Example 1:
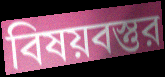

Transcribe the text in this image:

বিষয়বস্তুর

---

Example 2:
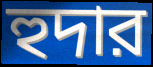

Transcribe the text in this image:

হুদার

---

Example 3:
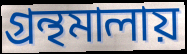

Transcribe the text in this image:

গ্রন্থমালায়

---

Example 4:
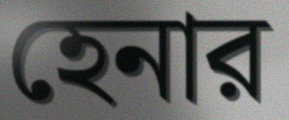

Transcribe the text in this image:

হেনার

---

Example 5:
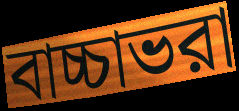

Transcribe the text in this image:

বাচ্চাভরা